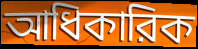
আধিকারিক